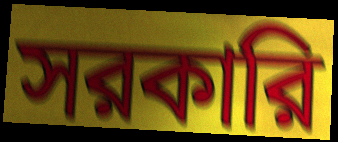
সরকারি